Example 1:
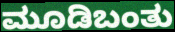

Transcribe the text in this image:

ಮೂಡಿಬಂತು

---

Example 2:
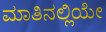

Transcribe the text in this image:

ಮಾತಿನಲ್ಲಿಯೇ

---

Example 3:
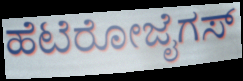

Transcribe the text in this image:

ಹೆಟೆರೋಜೈಗಸ್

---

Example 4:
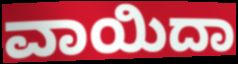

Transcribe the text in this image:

ವಾಯಿದಾ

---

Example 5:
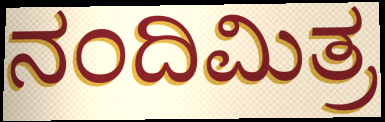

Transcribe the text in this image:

ನಂದಿಮಿತ್ರ